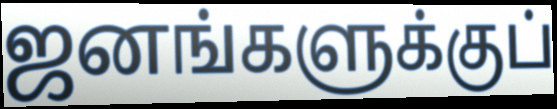
ஜனங்களுக்குப்